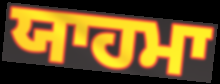
ਯਾਹਮਾ